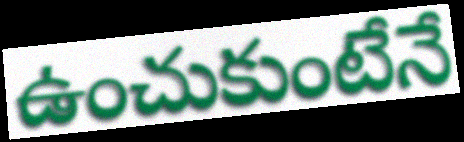
ఉంచుకుంటేనే